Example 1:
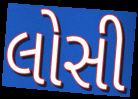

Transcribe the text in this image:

લોસી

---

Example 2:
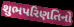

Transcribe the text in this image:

શુભપરિણતિનો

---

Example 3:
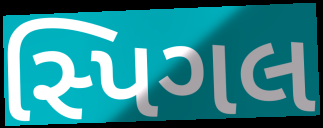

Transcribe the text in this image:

સ્પિગલ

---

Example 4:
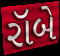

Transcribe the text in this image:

રૉબે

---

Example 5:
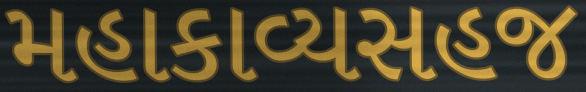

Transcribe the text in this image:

મહાકાવ્યસહજ